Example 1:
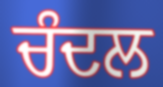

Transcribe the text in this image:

ਚੰਦਲ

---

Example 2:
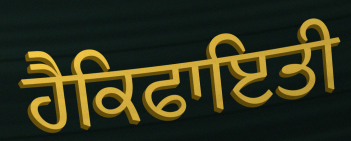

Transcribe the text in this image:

ਹੈਕਿਫਾਇਤੀ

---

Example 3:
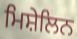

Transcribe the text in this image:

ਮਿਸ਼ੇਲਿਨ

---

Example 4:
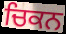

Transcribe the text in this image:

ਚਿਕਨ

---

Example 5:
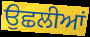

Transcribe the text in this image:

ਉਛਲੀਆਂ